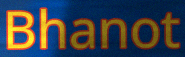
Bhanot